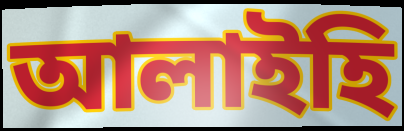
আলাইহি